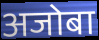
अजोबा